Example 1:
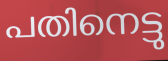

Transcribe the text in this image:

പതിനെട്ടു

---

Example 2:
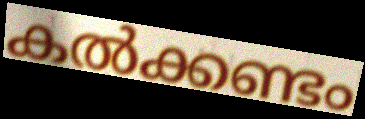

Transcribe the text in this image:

കൽക്കണ്ടം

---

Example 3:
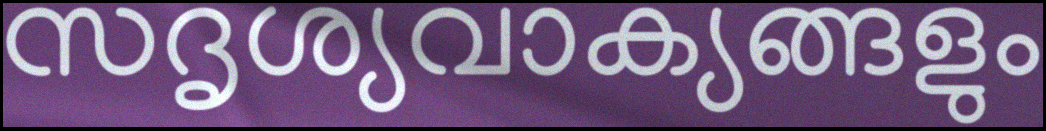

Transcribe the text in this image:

സദൃശ്യവാക്യങ്ങളും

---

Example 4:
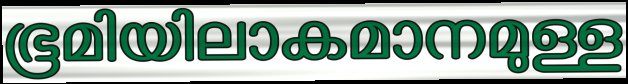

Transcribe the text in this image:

ഭൂമിയിലാകമാനമുള്ള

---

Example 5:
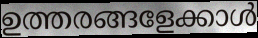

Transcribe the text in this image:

ഉത്തരങ്ങളേക്കാൾ